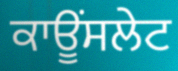
ਕਾਊਂਸਲੇਟ